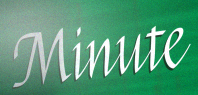
Minute